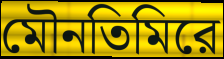
মৌনতিমিরে